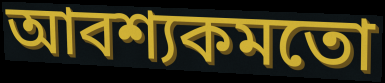
আবশ্যকমতো